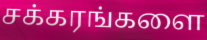
சக்கரங்களை